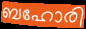
ബഹോരി